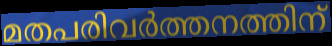
മതപരിവർത്തനത്തിന്